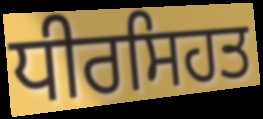
ਧੀਰਸਿਹਤ